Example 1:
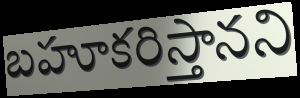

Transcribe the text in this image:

బహూకరిస్తానని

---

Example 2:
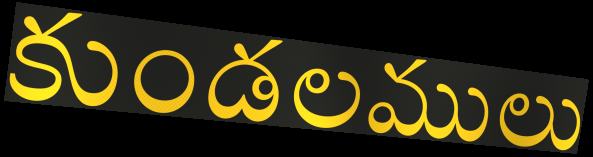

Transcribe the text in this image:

కుండలములు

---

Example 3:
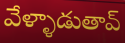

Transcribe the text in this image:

వేళ్ళాడుతావ్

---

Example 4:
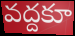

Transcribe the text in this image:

వద్దకూ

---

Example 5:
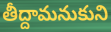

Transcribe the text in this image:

తీద్దామనుకుని